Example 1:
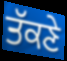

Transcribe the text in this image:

ਤੱਕਣੇ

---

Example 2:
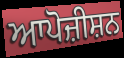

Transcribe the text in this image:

ਆਪੋਜ਼ੀਸ਼ਨ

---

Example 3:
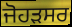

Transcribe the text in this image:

ਜੋਹੜਸਰ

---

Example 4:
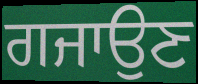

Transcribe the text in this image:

ਗਜਾਉਣ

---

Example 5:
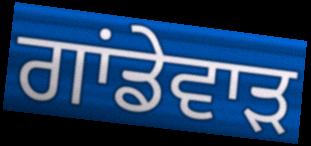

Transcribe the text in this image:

ਗਾਂਡੇਵਾੜ